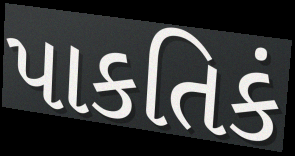
પાકતિકં